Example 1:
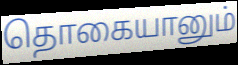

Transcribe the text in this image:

தொகையானும்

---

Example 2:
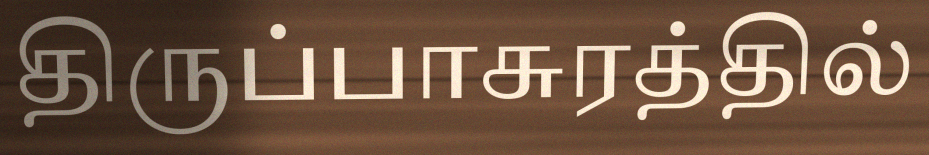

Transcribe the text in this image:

திருப்பாசுரத்தில்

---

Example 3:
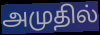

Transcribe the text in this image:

அமுதில்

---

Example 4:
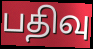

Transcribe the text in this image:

பதிவு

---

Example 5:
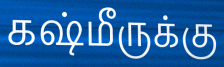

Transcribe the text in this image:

கஷ்மீருக்கு